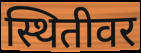
स्थितीवर